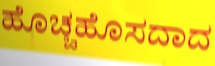
ಹೊಚ್ಚಹೊಸದಾದ